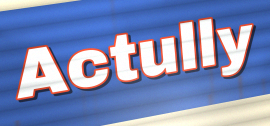
Actully